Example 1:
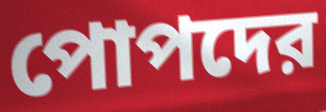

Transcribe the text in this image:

পোপদের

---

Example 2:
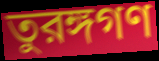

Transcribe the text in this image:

তুরঙ্গগণ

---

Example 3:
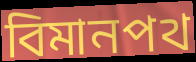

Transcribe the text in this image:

বিমানপথ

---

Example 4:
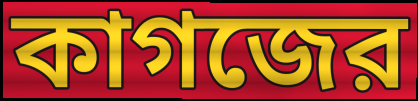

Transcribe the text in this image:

কাগজের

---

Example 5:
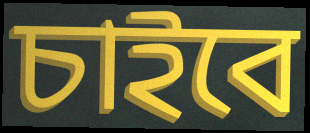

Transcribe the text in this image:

চাইবে